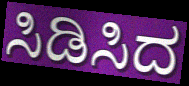
ಸಿಡಿಸಿದ